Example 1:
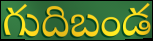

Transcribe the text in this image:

గుదిబండ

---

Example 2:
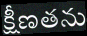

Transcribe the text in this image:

క్షీణతను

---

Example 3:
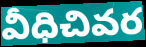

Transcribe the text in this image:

వీధిచివర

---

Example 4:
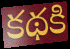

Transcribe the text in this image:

కథకి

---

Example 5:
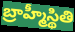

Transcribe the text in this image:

బ్రాహ్మీస్థితి